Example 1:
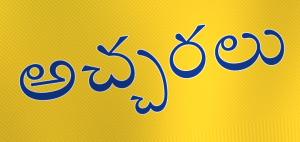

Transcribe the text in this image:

అచ్చరలు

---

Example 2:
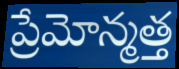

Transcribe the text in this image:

ప్రేమోన్మత్త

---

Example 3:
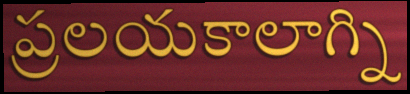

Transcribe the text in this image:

ప్రలయకాలాగ్ని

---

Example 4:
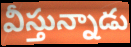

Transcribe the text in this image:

వీస్తున్నాడు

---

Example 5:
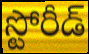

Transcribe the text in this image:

స్టోరీడ్